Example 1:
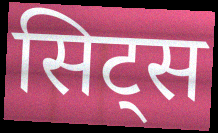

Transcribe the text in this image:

सिट्स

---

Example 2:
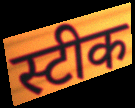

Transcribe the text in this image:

स्टीक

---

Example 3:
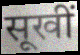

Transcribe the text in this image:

सूखीं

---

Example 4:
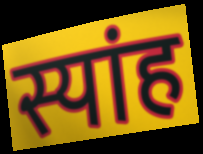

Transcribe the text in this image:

स्यांह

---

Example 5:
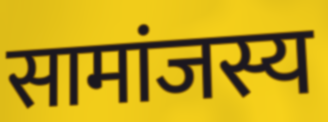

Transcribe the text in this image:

सामांजस्य